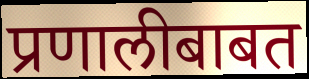
प्रणालीबाबत